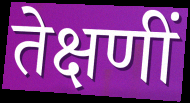
तेक्षणीं